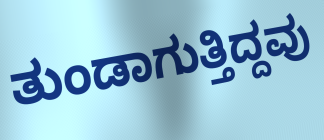
ತುಂಡಾಗುತ್ತಿದ್ದವು